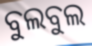
ବୁଲବୁଲ